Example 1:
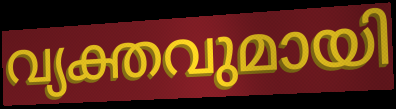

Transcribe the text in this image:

വ്യക്തവുമായി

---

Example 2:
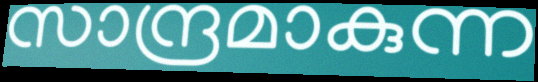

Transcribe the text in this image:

സാന്ദ്രമാകുന്ന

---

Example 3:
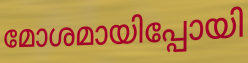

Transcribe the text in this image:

മോശമായിപ്പോയി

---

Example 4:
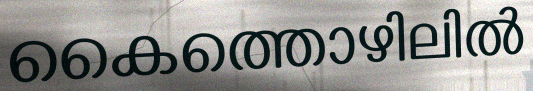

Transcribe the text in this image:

കൈത്തൊഴിലിൽ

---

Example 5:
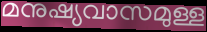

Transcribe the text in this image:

മനുഷ്യവാസമുള്ള